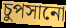
চুপসানো